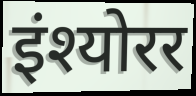
इंश्योरर